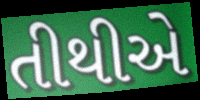
તીથીએ